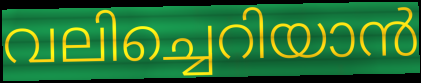
വലിച്ചെറിയാൻ